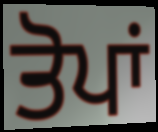
ਤੋਪਾਂ